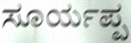
ಸೂರ್ಯಪ್ಪ